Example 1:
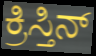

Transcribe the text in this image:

ಕ್ರಿಸ್ತಿನ್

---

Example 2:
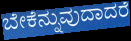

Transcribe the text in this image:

ಬೇಕೆನ್ನುವುದಾದರೆ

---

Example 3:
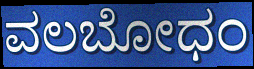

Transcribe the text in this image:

ವಲಬೋಧಂ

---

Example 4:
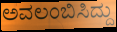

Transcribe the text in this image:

ಅವಲಂಬಿಸಿದ್ದು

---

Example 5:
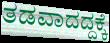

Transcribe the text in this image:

ತಡವಾದದ್ದಕ್ಕೆ